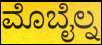
ಮೊಬೈಲ್ನ